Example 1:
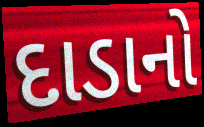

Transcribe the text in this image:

દાડાનો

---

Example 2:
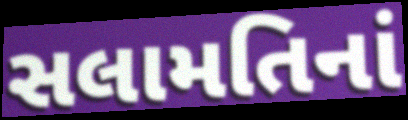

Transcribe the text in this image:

સલામતિનાં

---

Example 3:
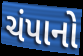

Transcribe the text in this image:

ચંપાનો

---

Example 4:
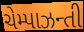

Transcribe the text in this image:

ચેમ્પાઝન્તી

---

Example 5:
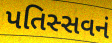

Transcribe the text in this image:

પતિસ્સવનં